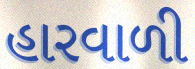
હારવાળી